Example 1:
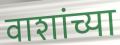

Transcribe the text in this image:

वाशांच्या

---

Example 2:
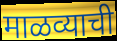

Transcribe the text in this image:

माळव्याची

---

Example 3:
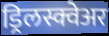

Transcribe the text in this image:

ड्रिलस्क्वेअर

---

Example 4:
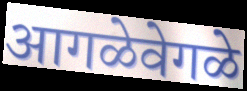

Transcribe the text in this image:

आगळेवेगळे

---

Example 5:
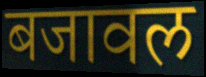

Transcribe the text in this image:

बजावल